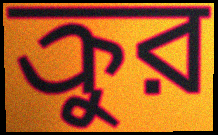
ক্রুর